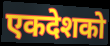
एकदेशको